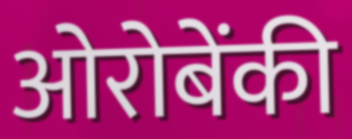
ओरोबेंकी